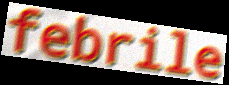
febrile